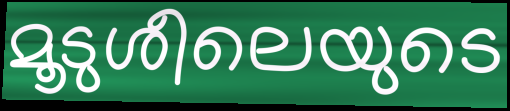
മൂടുശീലെയുടെ